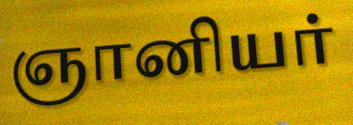
ஞானியர்